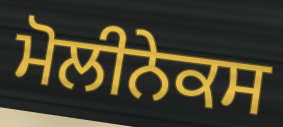
ਮੋਲੀਨੇਕਸ